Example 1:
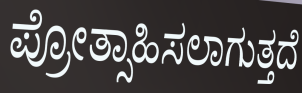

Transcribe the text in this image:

ಪ್ರೋತ್ಸಾಹಿಸಲಾಗುತ್ತದೆ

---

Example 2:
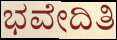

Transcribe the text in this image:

ಭವೇದಿತಿ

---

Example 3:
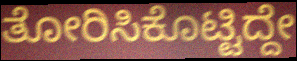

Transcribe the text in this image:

ತೋರಿಸಿಕೊಟ್ಟಿದ್ದೇ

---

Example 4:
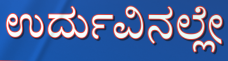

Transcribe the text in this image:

ಉರ್ದುವಿನಲ್ಲೇ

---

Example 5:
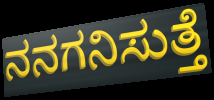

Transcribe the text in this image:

ನನಗನಿಸುತ್ತೆ